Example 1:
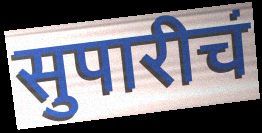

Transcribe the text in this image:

सुपारीचं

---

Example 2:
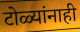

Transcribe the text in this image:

टोळ्यांनाही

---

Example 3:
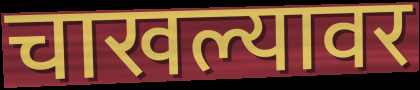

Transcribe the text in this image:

चाखल्यावर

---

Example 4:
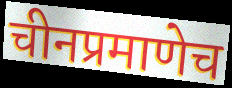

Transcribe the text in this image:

चीनप्रमाणेच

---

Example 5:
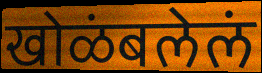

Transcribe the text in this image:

खोळंबलेलं